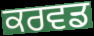
ਕਰਵਡ